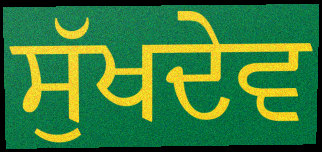
ਸੁੱਖਦੇਵ